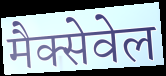
मैक्सेवेल